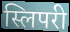
स्लिपरी